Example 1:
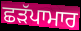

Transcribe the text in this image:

ਛੜੱਪਾਮਾਰ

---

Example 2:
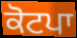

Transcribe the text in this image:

ਕੋਟਪਾ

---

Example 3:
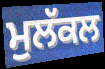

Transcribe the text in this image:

ਮੁਲੱਕਲ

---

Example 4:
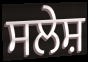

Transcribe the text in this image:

ਸਲੇਸ਼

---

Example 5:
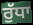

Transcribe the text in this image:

ਰੁੱਧਾ